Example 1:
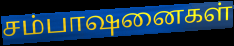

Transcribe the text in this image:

சம்பாஷனைகள்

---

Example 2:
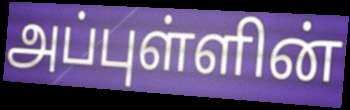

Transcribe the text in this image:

அப்புள்ளின்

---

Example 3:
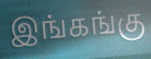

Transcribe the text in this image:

இங்கங்கு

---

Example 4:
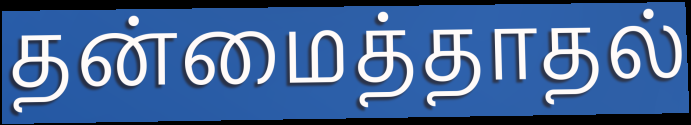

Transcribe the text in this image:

தன்மைத்தாதல்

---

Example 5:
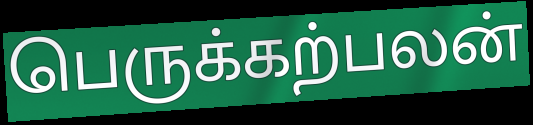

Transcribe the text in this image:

பெருக்கற்பலன்